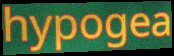
hypogea